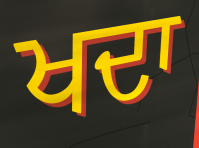
ਖਦਾ